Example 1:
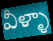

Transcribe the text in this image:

వీళ్ళా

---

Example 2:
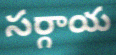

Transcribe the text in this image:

సర్గాయ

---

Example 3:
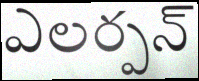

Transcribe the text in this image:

ఎలర్పన్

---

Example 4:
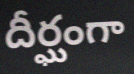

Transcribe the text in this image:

దీర్ఘంగా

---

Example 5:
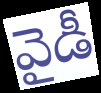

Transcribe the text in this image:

వైడీ